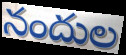
నందుల